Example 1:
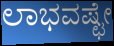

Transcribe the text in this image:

ಲಾಭವಷ್ಟೇ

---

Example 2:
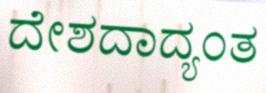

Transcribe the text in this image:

ದೇಶದಾದ್ಯಂತ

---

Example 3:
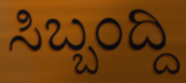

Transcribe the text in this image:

ಸಿಬ್ಬಂದ್ದಿ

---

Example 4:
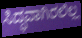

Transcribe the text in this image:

ಸಿದ್ಧವಾಗಿರಲಿಲ್ಲ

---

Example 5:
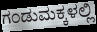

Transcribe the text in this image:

ಗಂಡುಮಕ್ಕಳಲ್ಲಿ